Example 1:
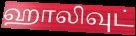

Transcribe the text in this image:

ஹாலிவுட்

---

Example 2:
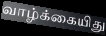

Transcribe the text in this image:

வாழ்க்கையிது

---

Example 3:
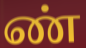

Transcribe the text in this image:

ண்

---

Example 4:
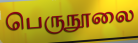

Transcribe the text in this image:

பெருநூலை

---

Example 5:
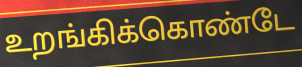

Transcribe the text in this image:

உறங்கிக்கொண்டே